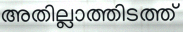
അതില്ലാത്തിടത്ത്